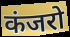
कंजरो